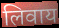
लिवाय